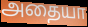
அதையா